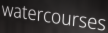
watercourses